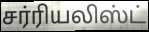
சர்ரியலிஸ்ட்